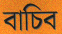
বাচিব